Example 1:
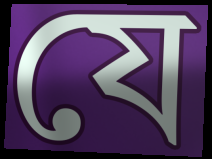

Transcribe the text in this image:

যে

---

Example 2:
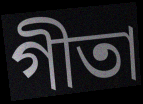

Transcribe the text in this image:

গীতা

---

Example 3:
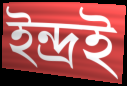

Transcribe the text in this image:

ইন্দ্ৰই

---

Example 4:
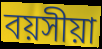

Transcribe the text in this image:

বয়সীয়া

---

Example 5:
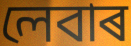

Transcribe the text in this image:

লেবাৰ